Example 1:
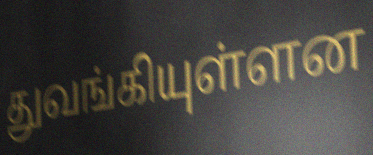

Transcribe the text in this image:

துவங்கியுள்ளன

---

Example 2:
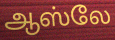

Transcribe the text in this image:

ஆஸ்லே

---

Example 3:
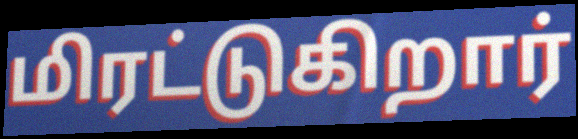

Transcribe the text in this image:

மிரட்டுகிறார்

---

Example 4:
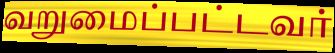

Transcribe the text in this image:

வறுமைப்பட்டவர்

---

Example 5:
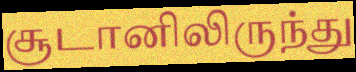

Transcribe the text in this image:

சூடானிலிருந்து